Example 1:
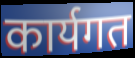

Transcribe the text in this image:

कार्यगत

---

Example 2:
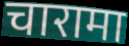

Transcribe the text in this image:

चारामा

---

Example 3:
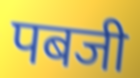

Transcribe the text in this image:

पबजी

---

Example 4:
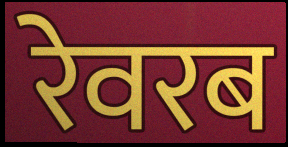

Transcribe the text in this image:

रेवरब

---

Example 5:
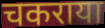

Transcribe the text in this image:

चकराया